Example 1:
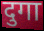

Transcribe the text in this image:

दुगा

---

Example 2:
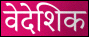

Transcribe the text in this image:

वेदेशिक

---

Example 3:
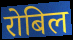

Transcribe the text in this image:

रोबिल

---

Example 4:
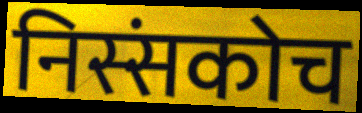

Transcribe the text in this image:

निस्संकोच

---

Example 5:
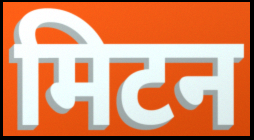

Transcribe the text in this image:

मिटन